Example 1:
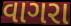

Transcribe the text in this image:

વાગરા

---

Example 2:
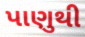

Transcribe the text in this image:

પાણુથી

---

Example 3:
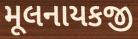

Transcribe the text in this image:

મૂલનાયકજી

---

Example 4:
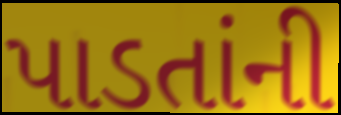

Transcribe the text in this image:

પાડતાંની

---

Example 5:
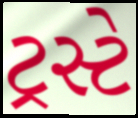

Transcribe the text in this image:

ટ્રસ્ટે